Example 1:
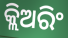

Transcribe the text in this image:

କ୍ଲିଅରିଂ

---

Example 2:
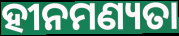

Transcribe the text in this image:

ହୀନମଣ୍ୟତା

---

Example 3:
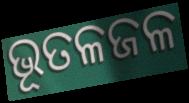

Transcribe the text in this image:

ଭୂତଳଜଳ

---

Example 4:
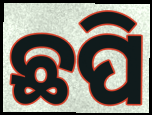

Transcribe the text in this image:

ଛପି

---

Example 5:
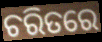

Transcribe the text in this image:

ଚରିତରେ